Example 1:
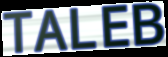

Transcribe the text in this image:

TALEB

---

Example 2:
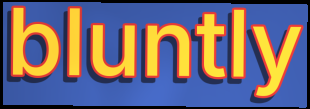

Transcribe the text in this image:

bluntly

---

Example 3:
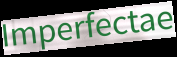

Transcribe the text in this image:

Imperfectae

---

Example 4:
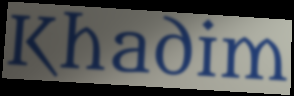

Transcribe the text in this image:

Khadim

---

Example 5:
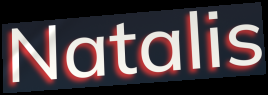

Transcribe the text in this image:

Natalis